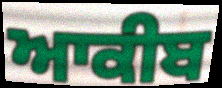
ਆਕੀਬ